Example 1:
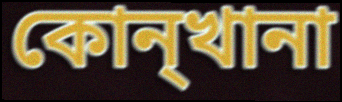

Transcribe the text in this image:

কোন্খানা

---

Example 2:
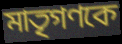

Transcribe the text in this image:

মাতৃগণকে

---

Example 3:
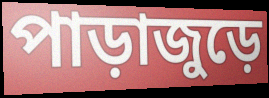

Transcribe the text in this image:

পাড়াজুড়ে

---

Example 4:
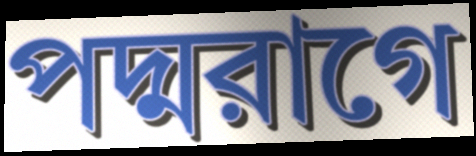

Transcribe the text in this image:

পদ্মরাগে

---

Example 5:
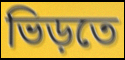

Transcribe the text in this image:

ভিড়তে